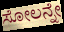
ಸೋಲನ್ನೇ